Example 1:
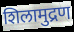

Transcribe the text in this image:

शिलामुद्रण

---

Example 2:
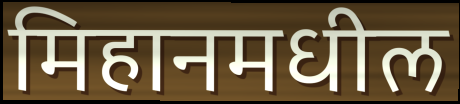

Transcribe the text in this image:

मिहानमधील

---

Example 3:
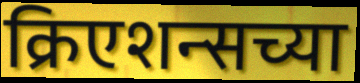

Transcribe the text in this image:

क्रिएशन्सच्या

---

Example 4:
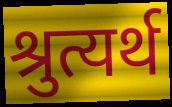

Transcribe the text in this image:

श्रुत्यर्थ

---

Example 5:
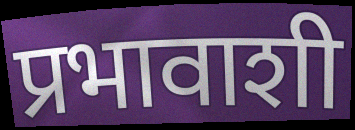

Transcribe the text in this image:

प्रभावाशी